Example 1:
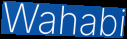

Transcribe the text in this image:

Wahabi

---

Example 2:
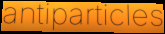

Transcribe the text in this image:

antiparticles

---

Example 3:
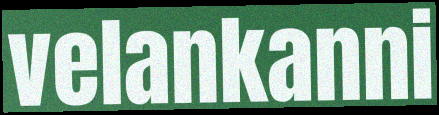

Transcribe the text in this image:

velankanni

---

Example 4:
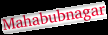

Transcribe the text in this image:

Mahabubnagar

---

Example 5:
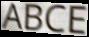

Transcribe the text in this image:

ABCE